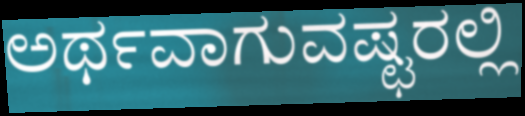
ಅರ್ಥವಾಗುವಷ್ಟರಲ್ಲಿ